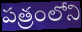
పత్రంలోని